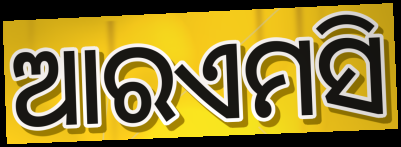
ଆରଏମସି